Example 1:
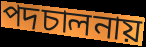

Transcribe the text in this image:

পদচালনায়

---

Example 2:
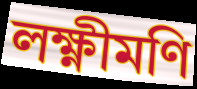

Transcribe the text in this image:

লক্ষ্ণীমণি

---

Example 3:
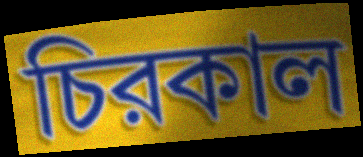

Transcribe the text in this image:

চিরকাল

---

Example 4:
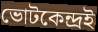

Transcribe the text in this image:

ভোটকেন্দ্রই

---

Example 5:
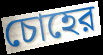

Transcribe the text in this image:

চোহের